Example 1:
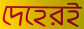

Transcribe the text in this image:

দেহেরই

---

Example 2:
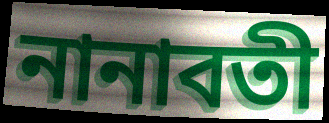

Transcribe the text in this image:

নানাবতী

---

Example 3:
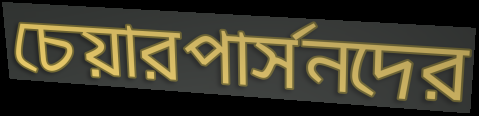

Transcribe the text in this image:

চেয়ারপার্সনদের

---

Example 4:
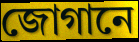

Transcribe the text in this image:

জোগানে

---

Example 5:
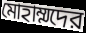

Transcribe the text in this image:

মোহাম্মদের